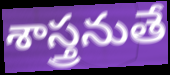
శాస్త్రనుతే